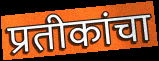
प्रतीकांचा